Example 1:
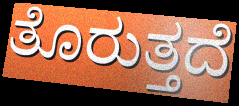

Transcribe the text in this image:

ತೊರುತ್ತದೆ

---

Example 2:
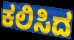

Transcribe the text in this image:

ಕಲಿಸಿದ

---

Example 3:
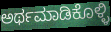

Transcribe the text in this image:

ಅರ್ಥಮಾಡಿಕೊಳ್ಳಿ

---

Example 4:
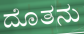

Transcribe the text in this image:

ದೊತನು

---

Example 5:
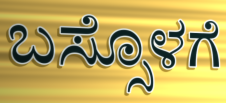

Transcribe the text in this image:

ಬಸ್ಸೊಳಗೆ